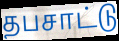
தபசாட்டு